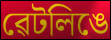
ৱেটলিঙে